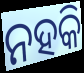
ନହକି